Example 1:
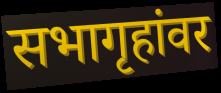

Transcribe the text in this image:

सभागृहांवर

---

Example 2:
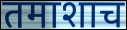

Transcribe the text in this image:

तमाशाच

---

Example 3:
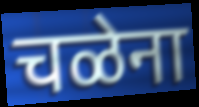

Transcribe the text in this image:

चळेना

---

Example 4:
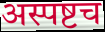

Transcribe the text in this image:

अस्पष्टच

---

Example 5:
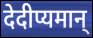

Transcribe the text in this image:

देदीप्यमान्